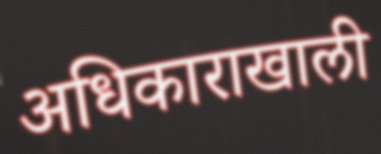
अधिकाराखाली